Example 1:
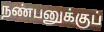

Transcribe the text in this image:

நண்பனுக்குப்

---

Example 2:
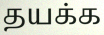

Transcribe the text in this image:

தயக்க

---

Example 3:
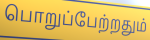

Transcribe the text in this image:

பொறுப்பேற்றதும்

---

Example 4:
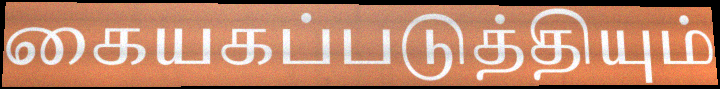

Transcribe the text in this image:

கையகப்படுத்தியும்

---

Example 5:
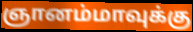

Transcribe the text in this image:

ஞானம்மாவுக்கு